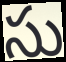
సు